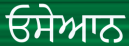
ਓਸੇਆਨ